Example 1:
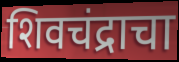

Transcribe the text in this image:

शिवचंद्राचा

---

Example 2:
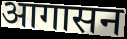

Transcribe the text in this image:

आगासन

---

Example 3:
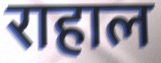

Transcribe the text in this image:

राहाल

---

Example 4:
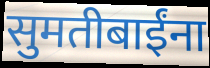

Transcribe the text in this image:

सुमतीबाईंना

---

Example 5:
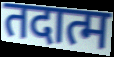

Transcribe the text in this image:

तदात्म